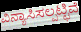
ವಿನ್ಯಾಸಿಸಲ್ಪಟ್ಟಿವೆ